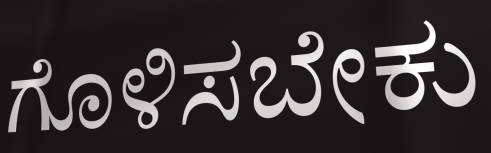
ಗೊಳಿಸಬೇಕು